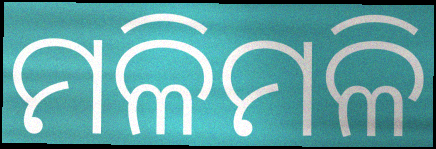
ମଳିମଳି